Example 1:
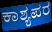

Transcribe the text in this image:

ಕಾಶ್ಯಪರ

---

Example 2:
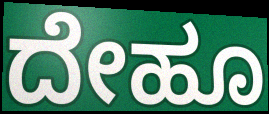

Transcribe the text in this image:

ದೇಹೂ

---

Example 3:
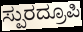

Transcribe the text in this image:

ಸ್ಪುರದ್ರೂಪಿ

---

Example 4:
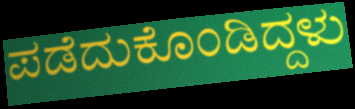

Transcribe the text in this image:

ಪಡೆದುಕೊಂಡಿದ್ದಳು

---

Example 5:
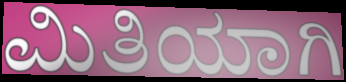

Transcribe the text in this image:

ಮಿತಿಯಾಗಿ